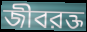
জীবরক্ত